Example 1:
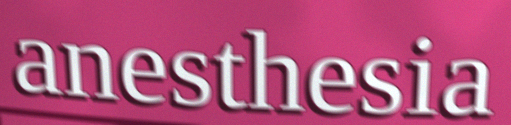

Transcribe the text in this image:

anesthesia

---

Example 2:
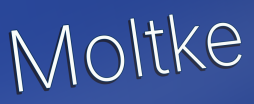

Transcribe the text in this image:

Moltke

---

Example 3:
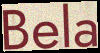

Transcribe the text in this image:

Bela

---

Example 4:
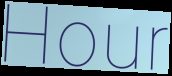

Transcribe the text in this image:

Hour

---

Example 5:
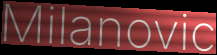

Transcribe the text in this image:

Milanovic